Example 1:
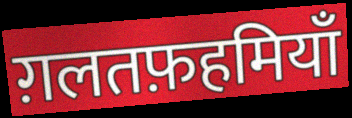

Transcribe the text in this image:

ग़लतफ़हमियाँ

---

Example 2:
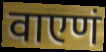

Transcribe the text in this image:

वाएणं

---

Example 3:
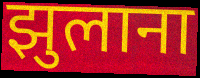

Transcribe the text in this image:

झुलाना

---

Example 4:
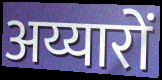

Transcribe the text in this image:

अय्यारों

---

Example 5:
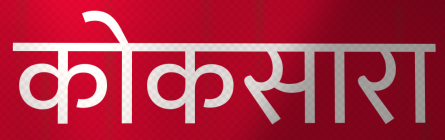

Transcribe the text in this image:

कोकसारा